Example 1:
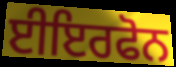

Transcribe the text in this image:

ਈਇਰਫੋਨ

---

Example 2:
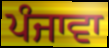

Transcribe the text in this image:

ਪੰਜਾਵਾ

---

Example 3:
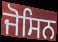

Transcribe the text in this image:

ਜੋਸਿਨ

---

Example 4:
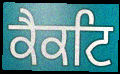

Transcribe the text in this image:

ਕੈਕਟਿ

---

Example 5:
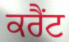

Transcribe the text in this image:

ਕਰੈਂਟ